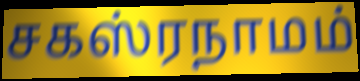
சகஸ்ரநாமம்